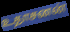
உதாசனன்